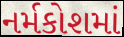
નર્મકોશમાં